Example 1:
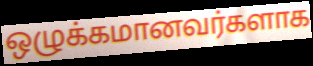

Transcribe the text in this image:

ஒழுக்கமானவர்களாக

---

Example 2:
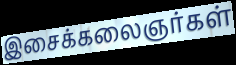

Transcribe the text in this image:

இசைக்கலைஞர்கள்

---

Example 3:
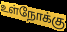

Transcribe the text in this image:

உள்நோக்கு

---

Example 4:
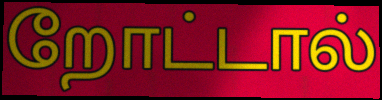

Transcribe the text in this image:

றோட்டால்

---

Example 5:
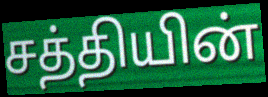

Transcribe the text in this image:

சத்தியின்